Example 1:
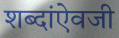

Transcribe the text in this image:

शब्दांऐवजी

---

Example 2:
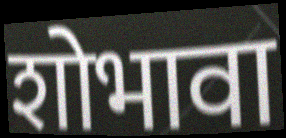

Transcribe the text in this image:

शोभावा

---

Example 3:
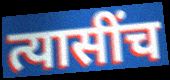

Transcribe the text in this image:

त्यासींच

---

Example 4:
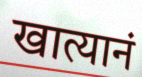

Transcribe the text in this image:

खात्यानं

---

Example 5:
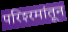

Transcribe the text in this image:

परिश्रमांतून